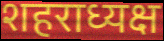
शहराध्यक्ष